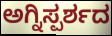
ಅಗ್ನಿಸ್ಪರ್ಶದ